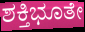
ಶಕ್ತಿಭೂತೇ